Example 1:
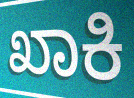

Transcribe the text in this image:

ಖಾಕಿ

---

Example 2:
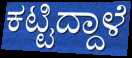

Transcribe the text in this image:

ಕಟ್ಟಿದ್ದಾಳೆ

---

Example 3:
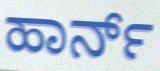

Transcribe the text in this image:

ಹಾರ್ನ್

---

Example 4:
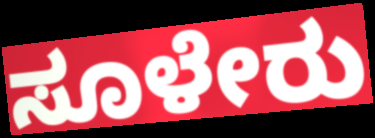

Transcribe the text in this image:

ಸೂಳೇರು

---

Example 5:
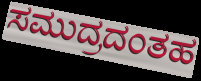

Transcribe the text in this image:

ಸಮುದ್ರದಂತಹ